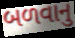
બળવાનુ